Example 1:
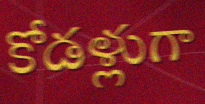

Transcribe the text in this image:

కోడళ్లుగా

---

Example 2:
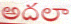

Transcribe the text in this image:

అదలా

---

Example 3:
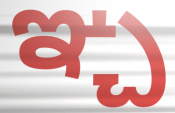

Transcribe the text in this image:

ఞ్చ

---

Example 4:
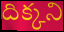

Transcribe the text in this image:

దిక్కని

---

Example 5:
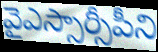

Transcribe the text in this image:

వైఎస్సార్సీపీని